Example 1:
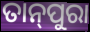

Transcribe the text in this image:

ତାନ୍‌ପୁରା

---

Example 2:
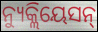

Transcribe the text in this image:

ନ୍ୟୁକ୍ଲିୟେସନ୍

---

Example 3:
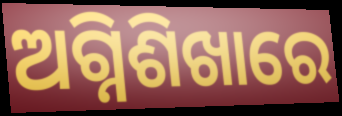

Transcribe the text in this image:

ଅଗ୍ନିଶିଖାରେ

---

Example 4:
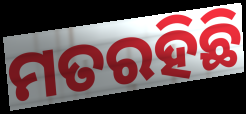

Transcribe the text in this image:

ମତରହିଛି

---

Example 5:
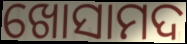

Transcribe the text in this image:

ଖୋସାମଦ